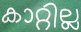
കാറ്റില്ല